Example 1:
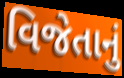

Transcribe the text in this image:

વિજેતાનું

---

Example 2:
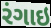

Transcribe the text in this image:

રંગાઇ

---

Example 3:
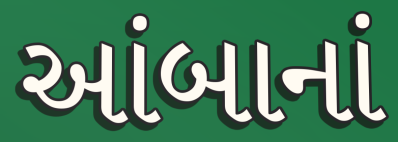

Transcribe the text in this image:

આંબાનાં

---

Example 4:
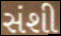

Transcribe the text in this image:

સંશી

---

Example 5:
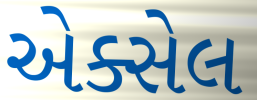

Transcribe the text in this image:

એક્સેલ